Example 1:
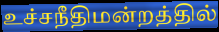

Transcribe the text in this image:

உச்சநீதிமன்றத்தில்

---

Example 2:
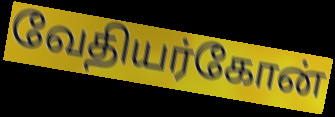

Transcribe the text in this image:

வேதியர்கோன்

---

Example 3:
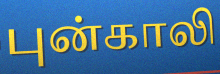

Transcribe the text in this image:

புன்காலி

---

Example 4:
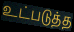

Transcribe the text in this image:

உட்படுத்த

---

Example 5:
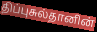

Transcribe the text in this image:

திப்புசுல்தானின்